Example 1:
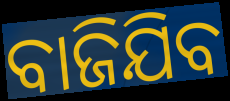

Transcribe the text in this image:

ବାଜିଯିବ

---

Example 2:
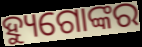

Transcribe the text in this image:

ହ୍ୟୁଗୋଙ୍କର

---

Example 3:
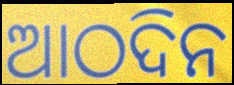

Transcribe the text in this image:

ଆଠଦିନ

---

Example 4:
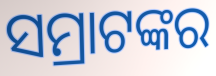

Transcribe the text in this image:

ସମ୍ରାଟଙ୍କର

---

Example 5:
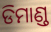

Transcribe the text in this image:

ଡିମାଣ୍ଡ